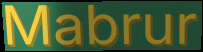
Mabrur